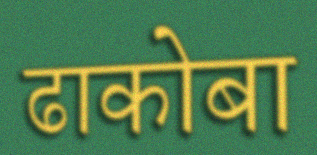
ढाकोबा